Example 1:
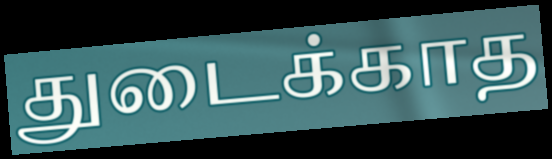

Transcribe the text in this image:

துடைக்காத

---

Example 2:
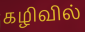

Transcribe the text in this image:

கழிவில்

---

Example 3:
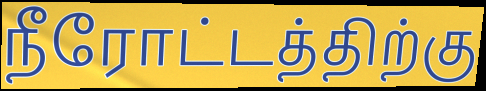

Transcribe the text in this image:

நீரோட்டத்திற்கு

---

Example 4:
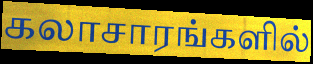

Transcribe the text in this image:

கலாசாரங்களில்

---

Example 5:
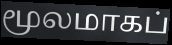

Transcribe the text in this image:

மூலமாகப்